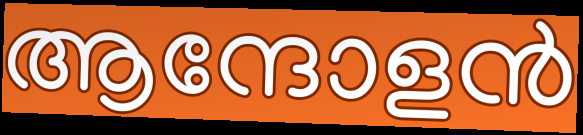
ആന്ദോളൻ